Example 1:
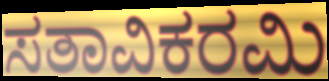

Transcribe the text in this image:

ಸತಾವಿಕರಮಿ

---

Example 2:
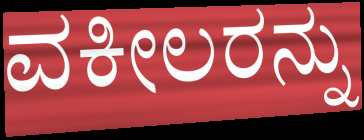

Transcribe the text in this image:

ವಕೀಲರನ್ನು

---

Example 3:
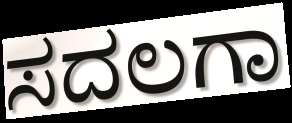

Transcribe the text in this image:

ಸದಲಗಾ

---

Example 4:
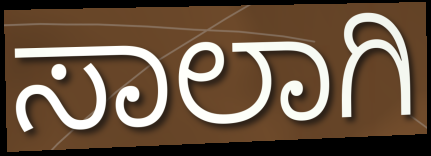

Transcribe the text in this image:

ಸಾಲಾಗಿ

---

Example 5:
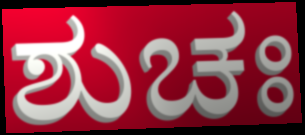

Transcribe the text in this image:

ಶುಚಃ